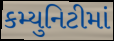
કમ્યુનિટીમાં